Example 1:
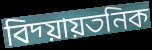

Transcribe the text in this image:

বিদ্য়ায়তনিক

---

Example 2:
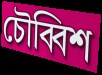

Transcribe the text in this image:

চৌব্বিশ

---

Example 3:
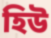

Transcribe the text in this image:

হিউ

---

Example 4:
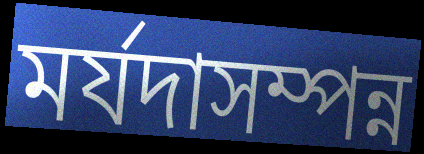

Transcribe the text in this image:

মৰ্যদাসম্পন্ন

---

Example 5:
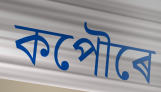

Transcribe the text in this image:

কপৌৰে